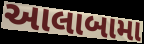
આલાબામા